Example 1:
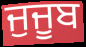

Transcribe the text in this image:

ਜੁਜੂਬ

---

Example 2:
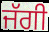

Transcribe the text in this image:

ਜੱਗੀ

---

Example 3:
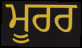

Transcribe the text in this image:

ਮੂਰਰ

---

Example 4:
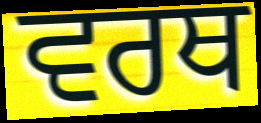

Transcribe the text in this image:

ਵਰਥ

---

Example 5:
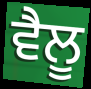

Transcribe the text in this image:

ਵੈਲੂ